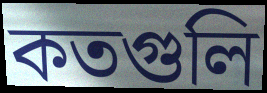
কতগুলি